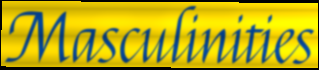
Masculinities